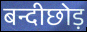
बन्दीछोड़